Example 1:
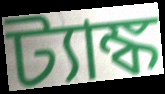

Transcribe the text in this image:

ট্যাঙ্ক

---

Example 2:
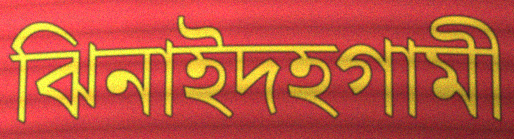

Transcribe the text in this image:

ঝিনাইদহগামী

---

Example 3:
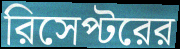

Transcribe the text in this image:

রিসেপ্টরের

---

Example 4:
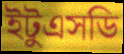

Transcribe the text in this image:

ইটুএসডি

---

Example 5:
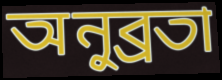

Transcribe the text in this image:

অনুব্রতা